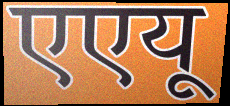
एएयू